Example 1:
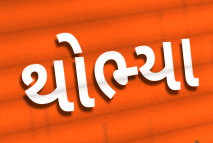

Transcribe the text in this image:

થોભ્યા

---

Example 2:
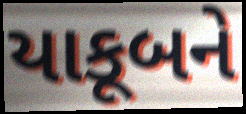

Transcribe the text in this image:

યાકૂબને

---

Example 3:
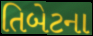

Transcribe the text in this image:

તિબેટના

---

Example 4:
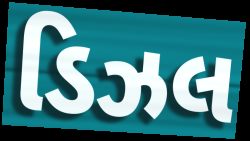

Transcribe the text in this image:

ડિઝલ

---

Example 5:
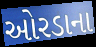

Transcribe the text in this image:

ઓરડાના